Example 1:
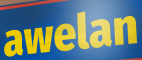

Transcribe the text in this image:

awelan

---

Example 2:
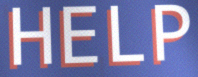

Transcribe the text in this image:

HELP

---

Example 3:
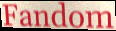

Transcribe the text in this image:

Fandom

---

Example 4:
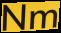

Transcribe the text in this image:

Nm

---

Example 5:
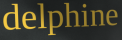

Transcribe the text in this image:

delphine